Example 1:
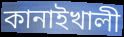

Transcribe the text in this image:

কানাইখালী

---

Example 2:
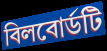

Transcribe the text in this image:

বিলবোর্ডটি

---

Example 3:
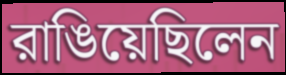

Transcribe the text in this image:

রাঙিয়েছিলেন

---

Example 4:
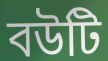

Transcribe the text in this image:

বউটি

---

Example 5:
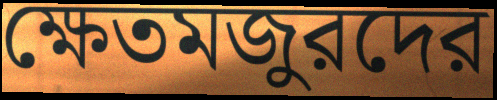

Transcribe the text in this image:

ক্ষেতমজুরদের